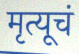
मृत्यूचं